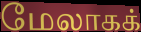
மேலாகக்